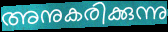
അനുകരിക്കുന്നു